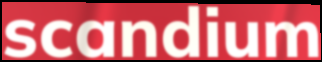
scandium